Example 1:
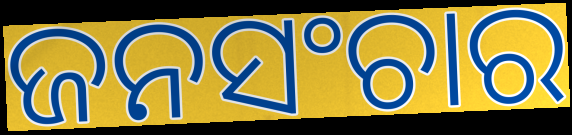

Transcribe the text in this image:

ଜନସଂଚାର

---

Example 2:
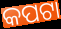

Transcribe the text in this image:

କପଟା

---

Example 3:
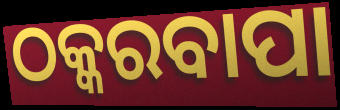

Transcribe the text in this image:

ଠକ୍କରବାପା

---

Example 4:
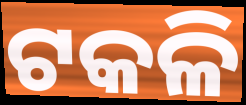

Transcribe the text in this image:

ଟକଳି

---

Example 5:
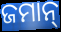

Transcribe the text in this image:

ଜମାନ୍